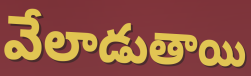
వేలాడుతాయి